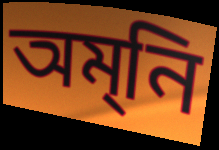
অম্‌নি